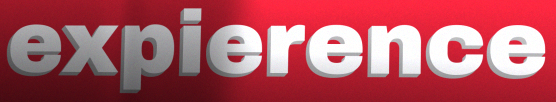
expierence